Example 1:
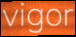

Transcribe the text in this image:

vigor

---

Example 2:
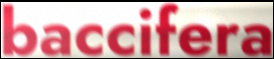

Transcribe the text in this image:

baccifera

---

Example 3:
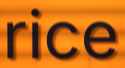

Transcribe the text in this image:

rice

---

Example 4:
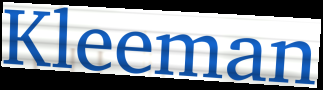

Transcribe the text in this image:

Kleeman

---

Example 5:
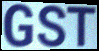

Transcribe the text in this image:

GST